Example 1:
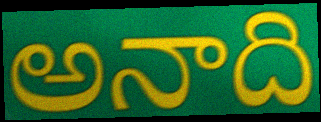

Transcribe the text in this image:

అనాది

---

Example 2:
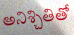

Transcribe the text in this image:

అనిశ్చితితో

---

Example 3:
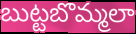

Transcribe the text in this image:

బుట్టబొమ్మలా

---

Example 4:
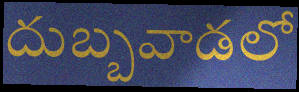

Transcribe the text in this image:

దుబ్బవాడలో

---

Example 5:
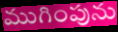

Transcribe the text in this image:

ముగింపును